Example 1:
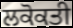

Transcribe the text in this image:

ਲਕੋਕਤੀ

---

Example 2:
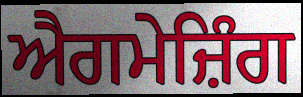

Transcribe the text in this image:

ਐਗਮੇਜ਼ਿੰਗ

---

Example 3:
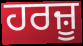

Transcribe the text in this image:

ਹਰਜ਼ੂ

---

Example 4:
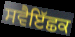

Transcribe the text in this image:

ਸਵੈਇੱਛਕ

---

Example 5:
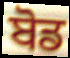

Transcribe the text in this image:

ਬੋਡ